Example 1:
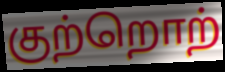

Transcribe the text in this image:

குற்றொற்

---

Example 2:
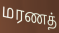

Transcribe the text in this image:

மரணத்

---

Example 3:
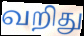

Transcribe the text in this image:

வறிது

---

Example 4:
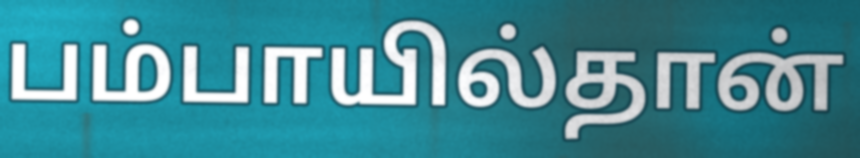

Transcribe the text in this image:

பம்பாயில்தான்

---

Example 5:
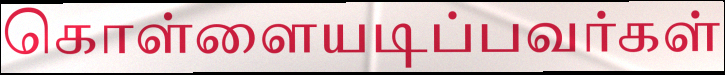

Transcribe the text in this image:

கொள்ளையடிப்பவர்கள்